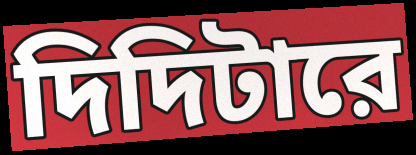
দিদিটারে